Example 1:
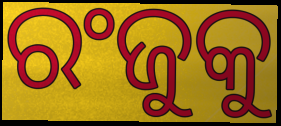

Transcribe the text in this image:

ରଂଜୁକୁ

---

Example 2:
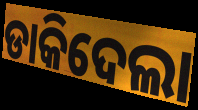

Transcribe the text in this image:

ଡାକିଦେଲା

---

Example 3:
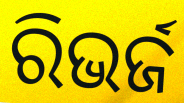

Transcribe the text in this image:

ରିଭର୍ଜ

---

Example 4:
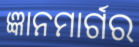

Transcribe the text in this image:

ଜ୍ଞାନମାର୍ଗର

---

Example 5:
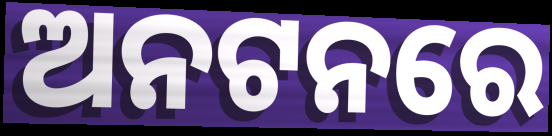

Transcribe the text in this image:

ଅନଟନରେ